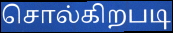
சொல்கிறபடி